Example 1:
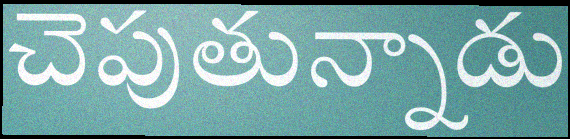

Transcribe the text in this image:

చెపుతున్నాడు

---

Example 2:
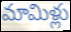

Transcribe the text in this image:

మామిళ్లు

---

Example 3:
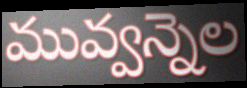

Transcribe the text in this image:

మువ్వన్నెల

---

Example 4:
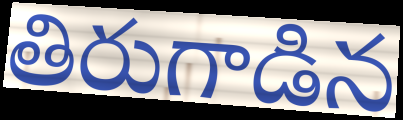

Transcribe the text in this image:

తిరుగాడిన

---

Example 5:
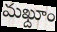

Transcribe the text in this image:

మఖ్దూం